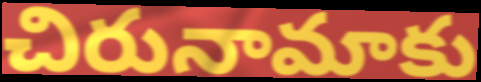
చిరునామాకు